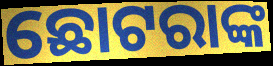
ଛୋଟରାଙ୍କ